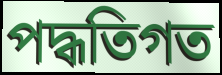
পদ্ধতিগত